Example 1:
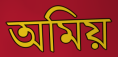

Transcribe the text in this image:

অমিয়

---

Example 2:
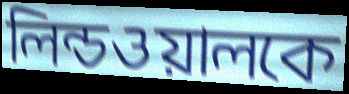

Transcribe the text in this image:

লিন্ডওয়ালকে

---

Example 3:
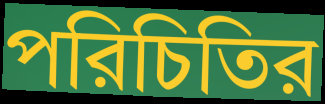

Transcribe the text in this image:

পরিচিতির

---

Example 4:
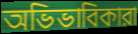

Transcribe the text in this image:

অভিভাবিকারা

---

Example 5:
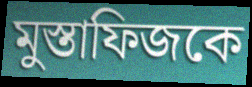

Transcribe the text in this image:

মুস্তাফিজকে